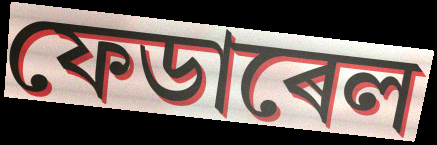
ফেডাৰেল